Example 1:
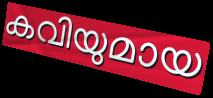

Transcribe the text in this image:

കവിയുമായ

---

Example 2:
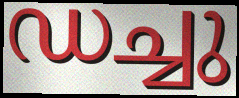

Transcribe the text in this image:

ഡച്ചു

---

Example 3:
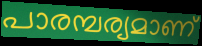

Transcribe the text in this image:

പാരമ്പര്യമാണ്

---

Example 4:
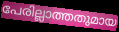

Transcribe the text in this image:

പേരില്ലാത്തതുമായ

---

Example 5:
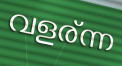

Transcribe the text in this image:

വളര്ന്ന